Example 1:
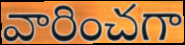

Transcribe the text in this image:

వారించగా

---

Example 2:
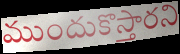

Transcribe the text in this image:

ముందుకొస్తారని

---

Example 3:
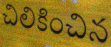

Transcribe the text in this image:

చిలికించిన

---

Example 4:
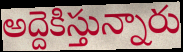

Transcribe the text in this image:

అద్దెకిస్తున్నారు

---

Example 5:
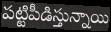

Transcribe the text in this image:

పట్టిపీడిస్తున్నాయి